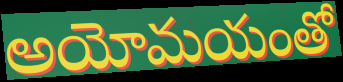
అయోమయంతో